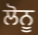
ਲੋਨੂ